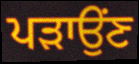
ਪੜਾਉਂਣ